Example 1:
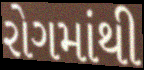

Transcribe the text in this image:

રોગમાંથી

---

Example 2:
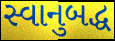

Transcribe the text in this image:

સ્વાનુબદ્ધ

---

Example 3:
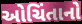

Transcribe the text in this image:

ઓચિંતાનો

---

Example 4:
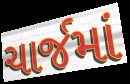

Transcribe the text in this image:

ચાર્જમાં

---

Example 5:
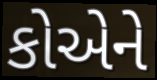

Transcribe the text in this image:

કોએને